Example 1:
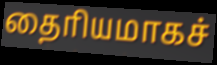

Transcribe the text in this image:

தைரியமாகச்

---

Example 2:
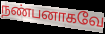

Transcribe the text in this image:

நண்பனாகவே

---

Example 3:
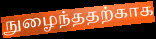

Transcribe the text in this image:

நுழைந்ததற்காக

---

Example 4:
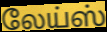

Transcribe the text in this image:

லேய்ஸ்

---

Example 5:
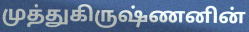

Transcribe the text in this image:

முத்துகிருஷ்ணனின்